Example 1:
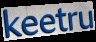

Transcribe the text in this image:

keetru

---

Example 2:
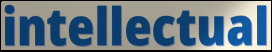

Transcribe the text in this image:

intellectual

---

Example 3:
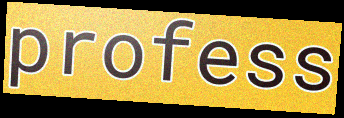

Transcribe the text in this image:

profess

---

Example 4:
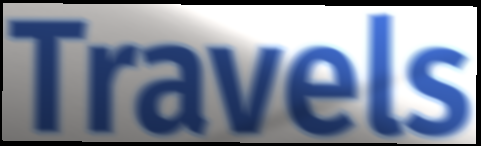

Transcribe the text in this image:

Travels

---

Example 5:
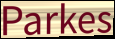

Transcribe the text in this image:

Parkes